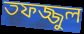
তফজ্জুল